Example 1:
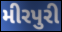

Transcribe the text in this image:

મીરપુરી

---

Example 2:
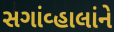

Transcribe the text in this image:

સગાંવ્હાલાંને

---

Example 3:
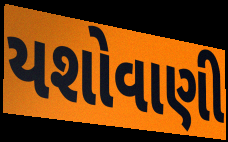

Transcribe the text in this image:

યશોવાણી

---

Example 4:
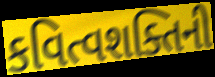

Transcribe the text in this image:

કવિત્વશક્તિની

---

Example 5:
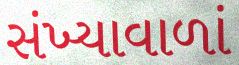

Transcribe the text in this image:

સંખ્યાવાળાં